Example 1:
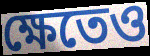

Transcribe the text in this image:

ক্ষেতেও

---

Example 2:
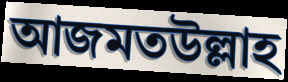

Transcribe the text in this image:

আজমতউল্লাহ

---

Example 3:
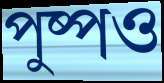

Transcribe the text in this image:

পুষ্পও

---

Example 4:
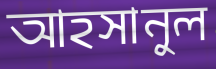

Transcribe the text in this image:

আহসানুল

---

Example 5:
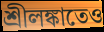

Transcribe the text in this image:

শ্রীলঙ্কাতেও